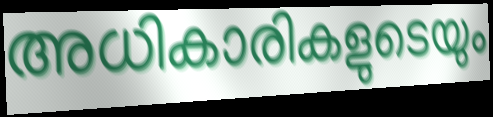
അധികാരികളുടെയും